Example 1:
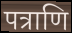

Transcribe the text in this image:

पत्राणि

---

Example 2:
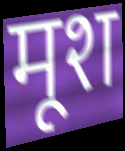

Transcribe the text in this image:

मूश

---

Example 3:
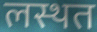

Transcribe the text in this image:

लस्थत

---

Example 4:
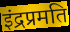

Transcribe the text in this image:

इंद्रप्रमति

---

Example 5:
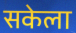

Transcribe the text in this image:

सकेला